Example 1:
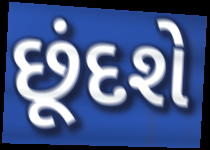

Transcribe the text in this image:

છૂંદશે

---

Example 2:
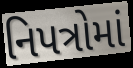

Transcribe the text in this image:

નિપત્રોમાં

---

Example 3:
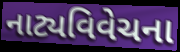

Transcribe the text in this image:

નાટ્યવિવેચના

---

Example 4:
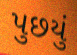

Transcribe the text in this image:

પુછયું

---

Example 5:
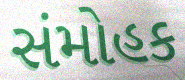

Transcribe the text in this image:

સંમોહક